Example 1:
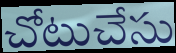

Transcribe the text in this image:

చోటుచేసు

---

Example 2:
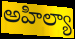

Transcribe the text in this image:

అహిల్యా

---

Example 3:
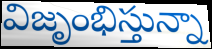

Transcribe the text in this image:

విజృంభిస్తున్నా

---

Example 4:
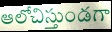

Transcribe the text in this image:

ఆలోచిస్తుండగా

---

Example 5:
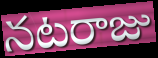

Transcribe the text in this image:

నటరాజు